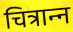
चित्रान्न